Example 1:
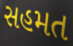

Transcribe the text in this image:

સહમત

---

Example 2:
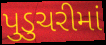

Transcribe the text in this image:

પુડુચરીમાં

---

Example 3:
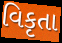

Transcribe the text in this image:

વિકૃતા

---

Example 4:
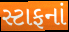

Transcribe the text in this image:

સ્ટાફનાં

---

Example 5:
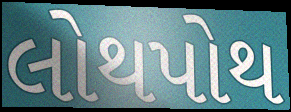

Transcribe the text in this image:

લોથપોથ